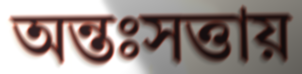
অন্তঃসত্তায়